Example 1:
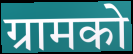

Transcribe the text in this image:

ग्रामको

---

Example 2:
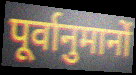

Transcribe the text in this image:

पूर्वानुमानों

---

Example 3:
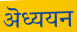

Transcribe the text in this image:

ऄध्ययन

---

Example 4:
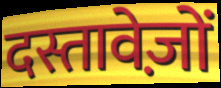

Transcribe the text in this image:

दस्तावेज़ों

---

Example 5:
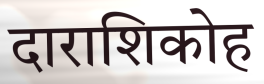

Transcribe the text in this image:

दाराशिकोह